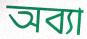
অব্যা